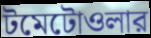
টমেটোওলার